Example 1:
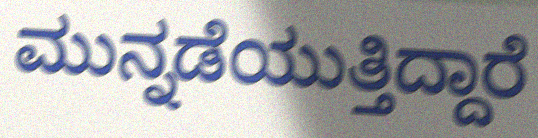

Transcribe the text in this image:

ಮುನ್ನಡೆಯುತ್ತಿದ್ದಾರೆ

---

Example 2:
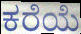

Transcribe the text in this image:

ಕರೆಯೆ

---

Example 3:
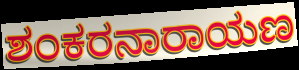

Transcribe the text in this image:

ಶಂಕರನಾರಾಯಣ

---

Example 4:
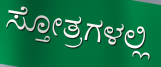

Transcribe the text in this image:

ಸ್ತೋತ್ರಗಳಲ್ಲಿ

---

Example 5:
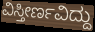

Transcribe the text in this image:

ವಿಸ್ತೀರ್ಣವಿದ್ದು